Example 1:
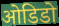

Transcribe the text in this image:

ओडिडो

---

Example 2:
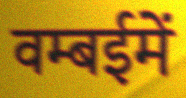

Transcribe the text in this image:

वम्बईमें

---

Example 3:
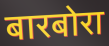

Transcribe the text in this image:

बारबोरा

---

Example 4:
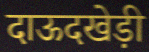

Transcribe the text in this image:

दाऊदखेड़ी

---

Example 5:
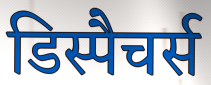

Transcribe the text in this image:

डिस्पैचर्स